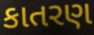
કાતરણ